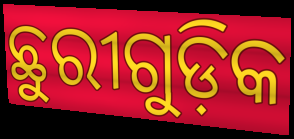
ଛୁରୀଗୁଡ଼ିକ